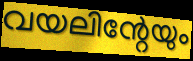
വയലിന്റേയും